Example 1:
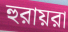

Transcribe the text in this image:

হুরায়রা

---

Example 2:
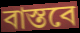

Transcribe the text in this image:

বাস্তবে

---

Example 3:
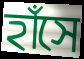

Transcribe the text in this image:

হাঁসে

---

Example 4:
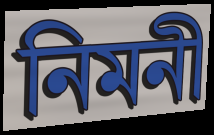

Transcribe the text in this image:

নিমনী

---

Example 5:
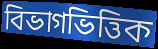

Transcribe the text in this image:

বিভাগভিত্তিক